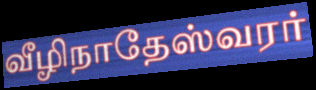
வீழிநாதேஸ்வரர்